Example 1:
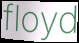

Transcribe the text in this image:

floyd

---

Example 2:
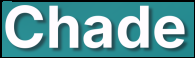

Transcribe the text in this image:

Chade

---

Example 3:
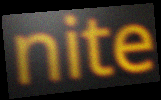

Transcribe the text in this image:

nite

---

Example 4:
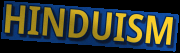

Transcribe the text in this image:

HINDUISM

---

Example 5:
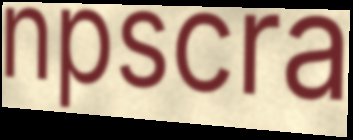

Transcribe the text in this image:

npscra